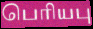
பெரியபு